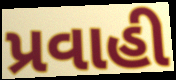
પ્રવાહી